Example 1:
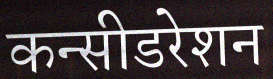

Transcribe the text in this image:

कन्सीडरेशन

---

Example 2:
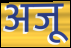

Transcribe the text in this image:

अजू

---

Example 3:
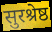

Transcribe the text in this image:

सुरश्रेष्ठ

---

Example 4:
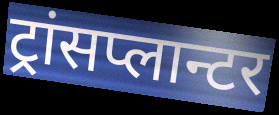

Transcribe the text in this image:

ट्रांसप्लान्टर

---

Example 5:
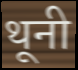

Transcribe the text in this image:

थूनी